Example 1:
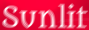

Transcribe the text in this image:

Sunlit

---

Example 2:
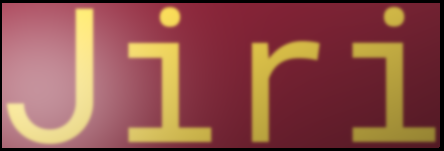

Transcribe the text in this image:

Jiri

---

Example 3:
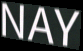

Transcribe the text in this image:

NAY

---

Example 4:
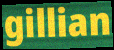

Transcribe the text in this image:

gillian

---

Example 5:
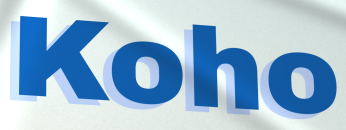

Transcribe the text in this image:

Koho